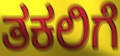
ತಕಲಿಗೆ